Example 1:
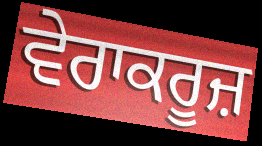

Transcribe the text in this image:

ਵੇਰਾਕਰੂਜ਼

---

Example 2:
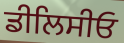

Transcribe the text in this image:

ਡੀਲਿਸੀਓ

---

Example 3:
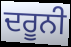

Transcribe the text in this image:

ਦਰੂਨੀ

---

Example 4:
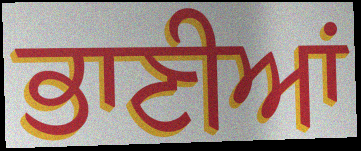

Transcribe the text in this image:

ਭਾਣੀਆਂ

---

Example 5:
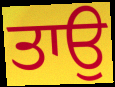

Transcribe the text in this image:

ਤਾਉ